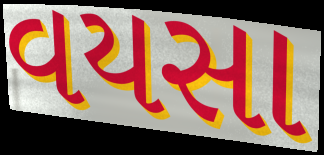
વયસા